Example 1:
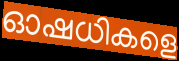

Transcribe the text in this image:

ഓഷധികളെ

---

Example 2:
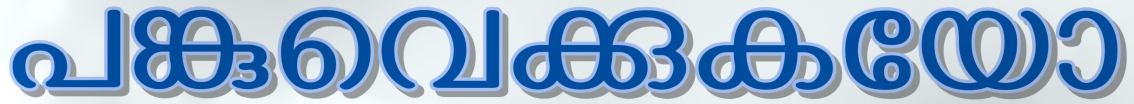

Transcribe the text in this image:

പങ്കുവെക്കുകയോ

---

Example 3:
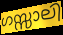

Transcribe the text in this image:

ഗസ്സാലി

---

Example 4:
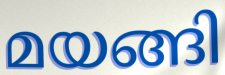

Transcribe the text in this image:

മയങ്ങി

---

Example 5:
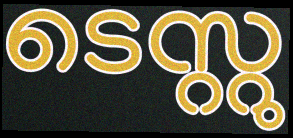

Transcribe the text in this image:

ടെസ്റ്റു